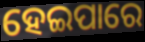
ହେଇପାରେ